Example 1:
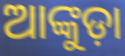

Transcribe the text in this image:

ଆଙ୍କୁଡ଼ା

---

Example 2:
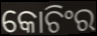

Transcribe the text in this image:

କୋଚିଂର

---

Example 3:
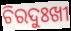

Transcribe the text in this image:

ଚିରଦୁଃଖୀ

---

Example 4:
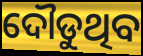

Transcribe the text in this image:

ଦୌଡୁଥିବ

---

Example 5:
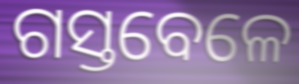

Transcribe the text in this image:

ଗସ୍ତବେଳେ